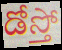
డోస్తో